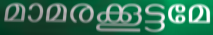
മാമരക്കൂട്ടമേ